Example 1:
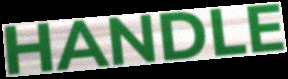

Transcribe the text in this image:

HANDLE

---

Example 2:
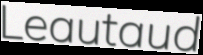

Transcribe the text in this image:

Leautaud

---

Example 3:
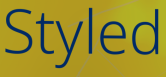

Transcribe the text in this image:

Styled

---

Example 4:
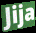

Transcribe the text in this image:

Jija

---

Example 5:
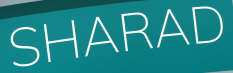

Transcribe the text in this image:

SHARAD